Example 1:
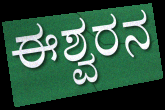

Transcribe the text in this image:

ಈಶ್ವರನ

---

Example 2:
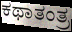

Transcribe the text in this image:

ಕಥಾತಂತ್ರ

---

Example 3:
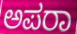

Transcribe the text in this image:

ಅಪರಾ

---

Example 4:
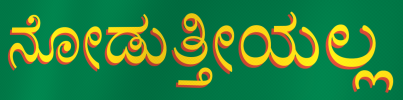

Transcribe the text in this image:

ನೋಡುತ್ತೀಯಲ್ಲ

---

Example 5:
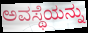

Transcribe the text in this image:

ಅವಸ್ಥೆಯನ್ನು